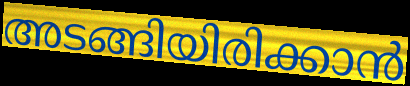
അടങ്ങിയിരിക്കാൻ